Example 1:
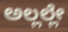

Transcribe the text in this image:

ಅಲ್ಲಲ್ಲೇ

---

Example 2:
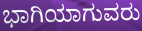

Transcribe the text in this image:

ಭಾಗಿಯಾಗುವರು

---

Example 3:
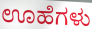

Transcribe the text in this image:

ಊಹೆಗಳು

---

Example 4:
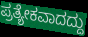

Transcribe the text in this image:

ಪ್ರತ್ಯೇಕವಾದದ್ದು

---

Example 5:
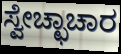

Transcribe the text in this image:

ಸ್ವೇಚ್ಛಾಚಾರ